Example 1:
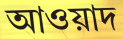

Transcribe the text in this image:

আওয়াদ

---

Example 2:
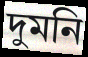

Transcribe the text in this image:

দুমনি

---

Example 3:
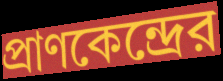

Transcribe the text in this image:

প্রাণকেন্দ্রের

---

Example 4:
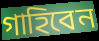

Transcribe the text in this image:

গাহিবেন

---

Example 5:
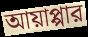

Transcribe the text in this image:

আয়াপ্পার